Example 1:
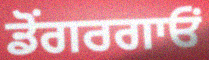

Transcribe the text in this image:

ਡੋਂਗਰਗਾਓਂ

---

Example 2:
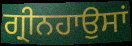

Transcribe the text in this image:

ਗ੍ਰੀਨਹਾਉਸਾਂ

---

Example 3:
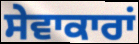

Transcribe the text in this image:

ਸੇਵਾਕਾਰਾਂ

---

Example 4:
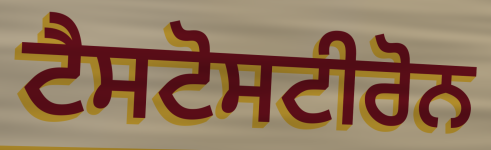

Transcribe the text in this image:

ਟੈਸਟੋਸਟੀਰੋਨ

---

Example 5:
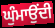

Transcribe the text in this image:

ਘੁੰਮਾਉਂਦੀ